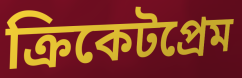
ক্রিকেটপ্রেম